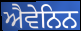
ਐਵੇਨਿਨ